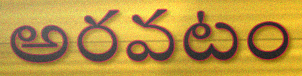
అరవటం